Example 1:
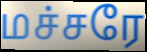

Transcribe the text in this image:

மச்சரே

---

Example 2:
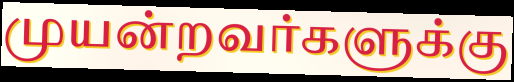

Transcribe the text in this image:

முயன்றவர்களுக்கு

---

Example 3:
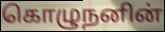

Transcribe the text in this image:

கொழுநனின்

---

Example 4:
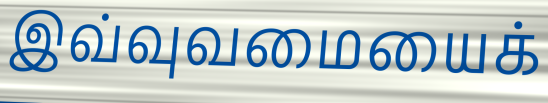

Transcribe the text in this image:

இவ்வுவமையைக்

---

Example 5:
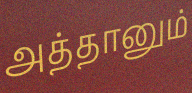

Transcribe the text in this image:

அத்தானும்